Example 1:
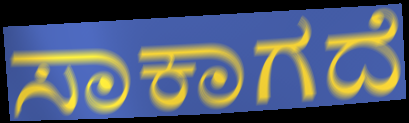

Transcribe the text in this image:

ಸಾಕಾಗದೆ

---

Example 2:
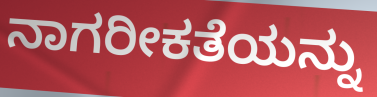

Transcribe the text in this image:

ನಾಗರೀಕತೆಯನ್ನು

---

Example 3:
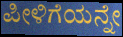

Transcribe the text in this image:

ಪೀಳಿಗೆಯನ್ನೇ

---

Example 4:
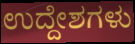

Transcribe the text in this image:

ಉದ್ದೇಶಗಳು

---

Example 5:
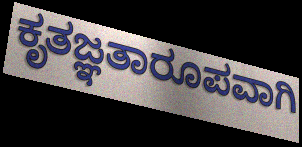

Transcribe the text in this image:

ಕೃತಜ್ಞತಾರೂಪವಾಗಿ